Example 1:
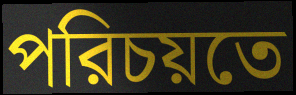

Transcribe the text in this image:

পরিচয়তে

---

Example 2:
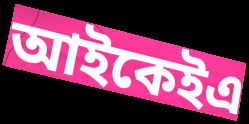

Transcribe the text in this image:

আইকেইএ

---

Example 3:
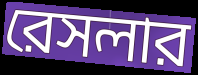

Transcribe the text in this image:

রেসলার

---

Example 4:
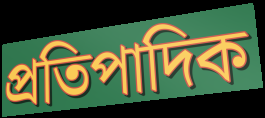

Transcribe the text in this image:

প্রতিপাদিক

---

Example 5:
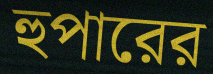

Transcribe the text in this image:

হুপারের